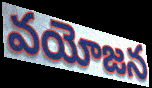
వయోజన